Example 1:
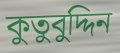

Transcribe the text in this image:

কুতুবুদ্দিন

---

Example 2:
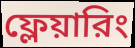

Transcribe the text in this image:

ফ্লেয়ারিং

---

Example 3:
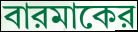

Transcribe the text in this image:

বারমাকের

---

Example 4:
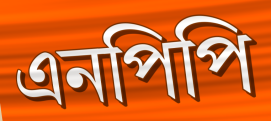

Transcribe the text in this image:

এনপিপি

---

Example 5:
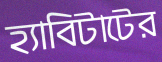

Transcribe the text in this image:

হ্যাবিটাটের